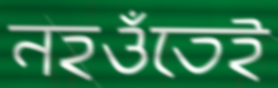
নহওঁতেই